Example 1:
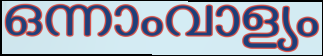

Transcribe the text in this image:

ഒന്നാംവാള്യം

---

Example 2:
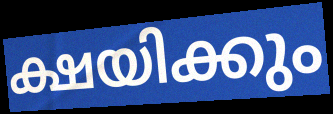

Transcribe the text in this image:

ക്ഷയിക്കും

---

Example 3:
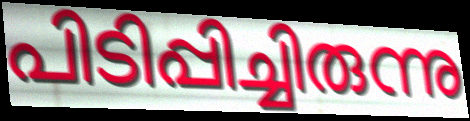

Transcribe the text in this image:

പിടിപ്പിച്ചിരുന്നു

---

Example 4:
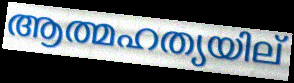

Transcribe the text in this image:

ആത്മഹത്യയില്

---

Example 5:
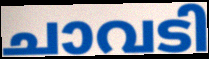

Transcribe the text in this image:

ചാവടി